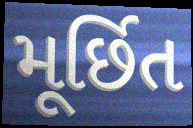
મૂર્છિત